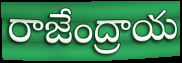
రాజేంద్రాయ